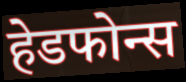
हेडफोन्स